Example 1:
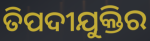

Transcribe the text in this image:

ତିପଦୀଯୁକ୍ତିର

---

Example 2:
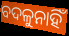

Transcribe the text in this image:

ବଦଳୁନାହିଁ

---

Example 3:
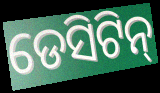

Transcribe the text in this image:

ଡେସିଟିନ୍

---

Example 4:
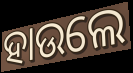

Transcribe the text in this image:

ହାଉଲେ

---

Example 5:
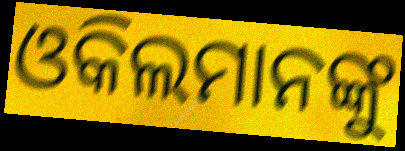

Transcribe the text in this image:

ଓକିଲମାନଙ୍କୁ